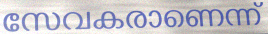
സേവകരാണെന്ന്